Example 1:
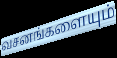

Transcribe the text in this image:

வசனங்களையும்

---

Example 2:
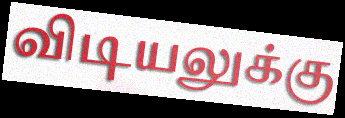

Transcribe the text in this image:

விடியலுக்கு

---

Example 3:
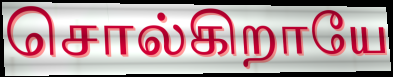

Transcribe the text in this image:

சொல்கிறாயே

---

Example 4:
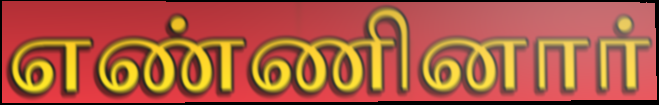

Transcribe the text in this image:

எண்ணினார்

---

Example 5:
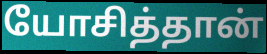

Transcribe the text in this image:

யோசித்தான்